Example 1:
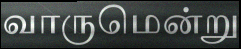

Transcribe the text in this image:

வாருமென்று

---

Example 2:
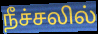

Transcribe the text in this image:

நீச்சலில்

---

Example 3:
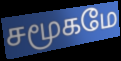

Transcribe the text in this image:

சமூகமே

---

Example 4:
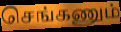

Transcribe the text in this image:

செங்கணும்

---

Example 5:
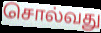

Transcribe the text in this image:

சொல்வது